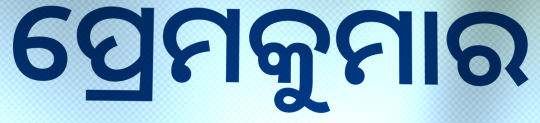
ପ୍ରେମକୁମାର